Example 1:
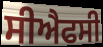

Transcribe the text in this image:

ਸੀਐਫਸੀ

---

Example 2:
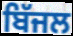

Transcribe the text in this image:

ਬਿੱਜਲ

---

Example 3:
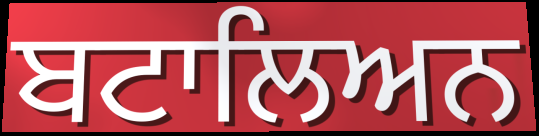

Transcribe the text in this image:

ਬਟਾਲਿਅਨ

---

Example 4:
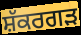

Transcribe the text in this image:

ਸ਼ੱਕਰਗੜ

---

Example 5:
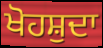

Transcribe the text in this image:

ਖੋਹਸ਼ੁਦਾ